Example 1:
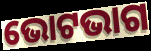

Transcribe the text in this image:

ଭୋଟଭାଗ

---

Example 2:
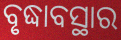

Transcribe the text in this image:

ବୃଦ୍ଧାବସ୍ଥାର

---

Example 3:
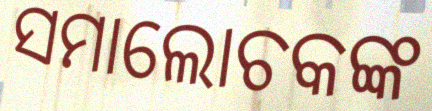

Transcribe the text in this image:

ସମାଲୋଚକଙ୍କ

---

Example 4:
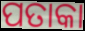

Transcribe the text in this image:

ପତାକା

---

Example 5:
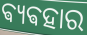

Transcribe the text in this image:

ଵ୍ଯଵହାର